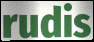
rudis